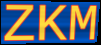
ZKM